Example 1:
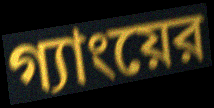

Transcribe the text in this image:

গ্যাংয়ের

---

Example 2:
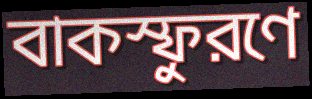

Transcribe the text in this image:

বাকস্ফুরণে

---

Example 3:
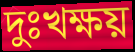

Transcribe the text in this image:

দুঃখক্ষয়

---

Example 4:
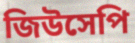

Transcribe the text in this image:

জিউসেপি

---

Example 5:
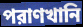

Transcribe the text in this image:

পরাণখানি